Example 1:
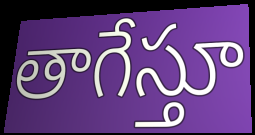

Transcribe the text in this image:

తాగేస్తూ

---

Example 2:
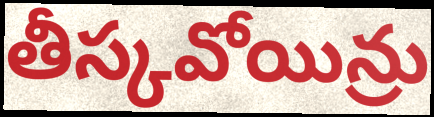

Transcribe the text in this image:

తీస్కవోయిన్రు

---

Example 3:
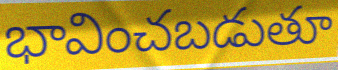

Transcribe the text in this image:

భావించబడుతూ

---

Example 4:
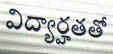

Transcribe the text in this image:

విద్యార్హతతో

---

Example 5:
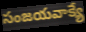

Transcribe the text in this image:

సంజయవాక్యే